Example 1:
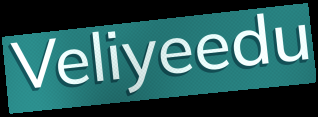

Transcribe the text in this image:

Veliyeedu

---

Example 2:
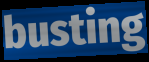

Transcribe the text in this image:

busting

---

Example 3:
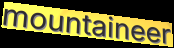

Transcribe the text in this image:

mountaineer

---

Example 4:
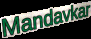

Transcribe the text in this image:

Mandavkar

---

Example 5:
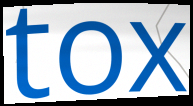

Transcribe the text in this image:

tox